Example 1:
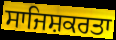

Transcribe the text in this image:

ਸਾਜਿਸ਼ਕਰਤਾ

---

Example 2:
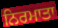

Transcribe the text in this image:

ਨਿਰਮਾਤਾ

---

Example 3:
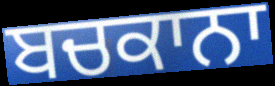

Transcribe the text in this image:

ਬਚਕਾਨਾ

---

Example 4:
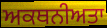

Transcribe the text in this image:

ਅਕਥਨੀਅਤਾ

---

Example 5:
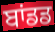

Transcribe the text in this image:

ਬਾਂਡਡ